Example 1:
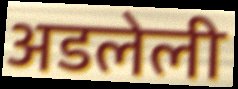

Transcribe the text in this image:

अडलेली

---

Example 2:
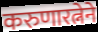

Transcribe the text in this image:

करुणारत्नेने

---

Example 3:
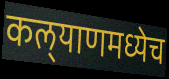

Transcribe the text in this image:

कल्याणमध्येच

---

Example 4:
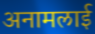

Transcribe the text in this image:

अनामलाई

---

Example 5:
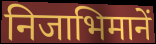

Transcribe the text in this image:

निजाभिमानें